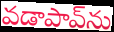
వడాపావ్‌ను